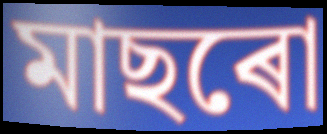
মাছৰো